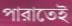
পারাতেই